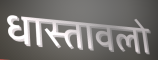
धास्तावलो